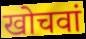
खोचवां